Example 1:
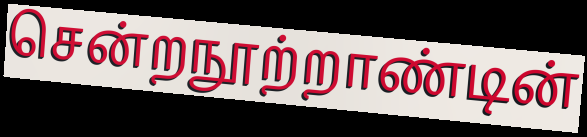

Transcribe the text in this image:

சென்றநூற்றாண்டின்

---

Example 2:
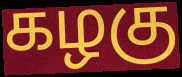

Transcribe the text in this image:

கழகு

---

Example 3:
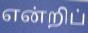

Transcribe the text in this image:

என்றிப்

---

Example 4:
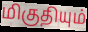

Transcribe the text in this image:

மிகுதியும்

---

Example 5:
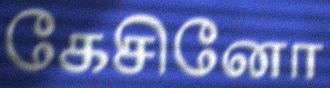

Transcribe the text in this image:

கேசினோ